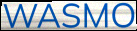
WASMO